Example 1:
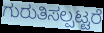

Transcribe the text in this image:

ಗುರುತಿಸಲ್ಪಟ್ಟರೆ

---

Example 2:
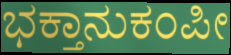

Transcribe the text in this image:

ಭಕ್ತಾನುಕಂಪೀ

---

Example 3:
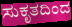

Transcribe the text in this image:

ಸುಕೃತದಿಂದ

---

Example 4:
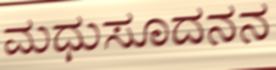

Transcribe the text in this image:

ಮಧುಸೂದನನ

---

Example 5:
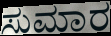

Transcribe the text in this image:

ಸುಮಾರ